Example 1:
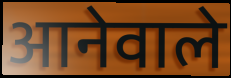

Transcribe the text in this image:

आनेवाले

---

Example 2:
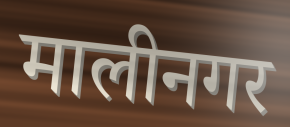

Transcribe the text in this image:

मालीनगर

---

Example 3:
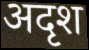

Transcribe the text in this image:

अदृश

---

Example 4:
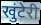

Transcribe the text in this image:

खुंटेरी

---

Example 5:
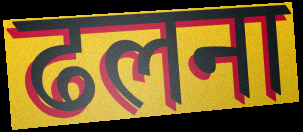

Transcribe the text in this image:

ढलना